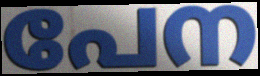
പേന